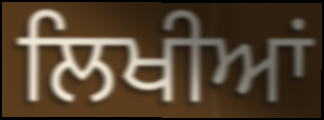
ਲਿਖੀਆਂ